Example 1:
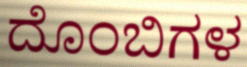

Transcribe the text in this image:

ದೊಂಬಿಗಳ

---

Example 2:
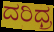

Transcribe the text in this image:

ದರಿಧ್ರ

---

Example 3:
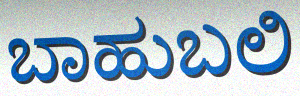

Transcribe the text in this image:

ಬಾಹುಬಲಿ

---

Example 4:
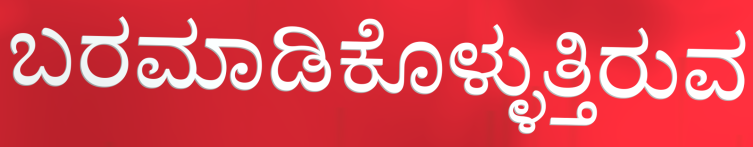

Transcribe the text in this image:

ಬರಮಾಡಿಕೊಳ್ಳುತ್ತಿರುವ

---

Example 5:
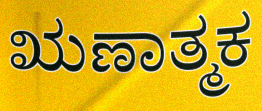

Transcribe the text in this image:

ಋಣಾತ್ಮಕ